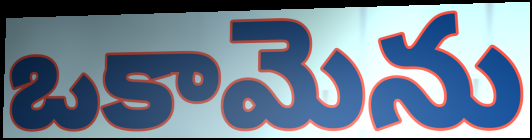
ఒకామెను